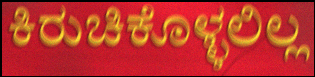
ಕಿರುಚಿಕೊಳ್ಳಲಿಲ್ಲ